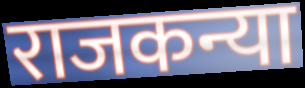
राजकन्या